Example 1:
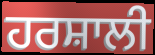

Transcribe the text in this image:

ਹਰਸ਼ਾਲੀ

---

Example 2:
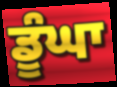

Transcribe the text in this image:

ਡੂੰਘਾ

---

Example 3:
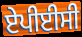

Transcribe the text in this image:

ਏਪੀਈਸੀ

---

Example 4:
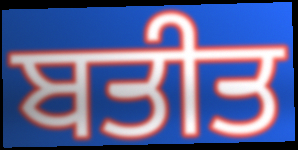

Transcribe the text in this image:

ਬਤੀਤ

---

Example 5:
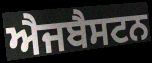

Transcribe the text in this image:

ਐਜਬੈਸਟਨ